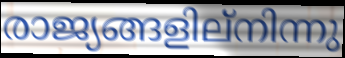
രാജ്യങ്ങളില്നിന്നു